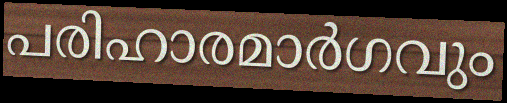
പരിഹാരമാർഗവും